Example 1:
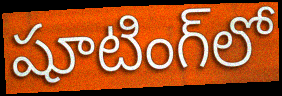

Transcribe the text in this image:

షూటింగ్‌లో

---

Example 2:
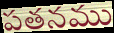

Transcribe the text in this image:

పతనము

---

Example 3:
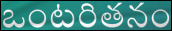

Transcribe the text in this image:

ఒంటరితనం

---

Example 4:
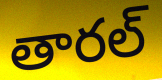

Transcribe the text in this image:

తారల్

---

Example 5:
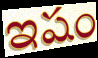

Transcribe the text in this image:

ఇషం